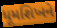
ધૂમશિખને